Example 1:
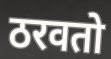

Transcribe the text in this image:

ठरवतो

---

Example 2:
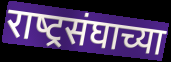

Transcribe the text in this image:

राष्ट्रसंघाच्या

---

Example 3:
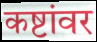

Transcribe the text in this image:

कष्टांवर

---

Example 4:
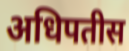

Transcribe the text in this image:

अधिपतीस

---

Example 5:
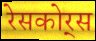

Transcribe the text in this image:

रेसकोर्स